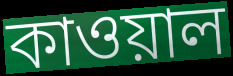
কাওয়াল